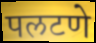
पलटणे